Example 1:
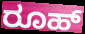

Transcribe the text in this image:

ರೂಹ್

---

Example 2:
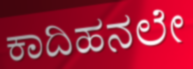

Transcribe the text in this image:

ಕಾದಿಹನಲೇ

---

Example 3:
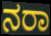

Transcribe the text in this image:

ನರಾ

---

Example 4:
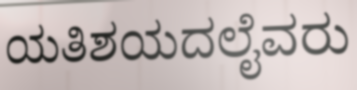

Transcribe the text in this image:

ಯತಿಶಯದಲೈವರು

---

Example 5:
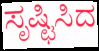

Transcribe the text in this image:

ಸೃಷ್ಟಿಸಿದ